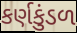
કર્ણકુંડળ